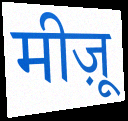
मीज़ू